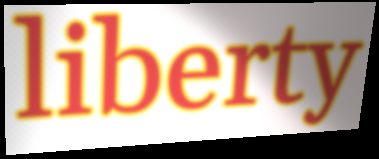
liberty